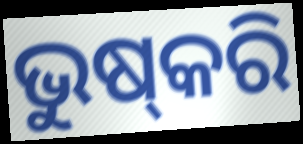
ଭୁଷ୍‌କରି